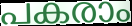
പകരാം